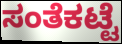
ಸಂತೆಕಟ್ಟೆ